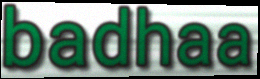
badhaa